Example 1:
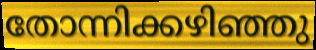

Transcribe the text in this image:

തോന്നിക്കഴിഞ്ഞു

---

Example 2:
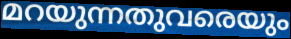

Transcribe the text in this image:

മറയുന്നതുവരെയും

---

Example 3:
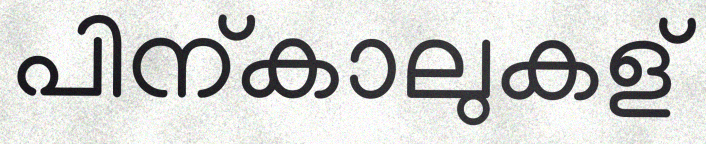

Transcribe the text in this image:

പിന്കാലുകള്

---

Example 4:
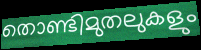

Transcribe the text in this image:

തൊണ്ടിമുതലുകളും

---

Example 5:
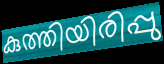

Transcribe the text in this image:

കുത്തിയിരിപ്പു